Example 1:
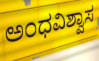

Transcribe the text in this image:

ಅಂಧವಿಶ್ವಾಸ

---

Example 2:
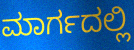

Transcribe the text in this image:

ಮಾರ್ಗದಲ್ಲಿ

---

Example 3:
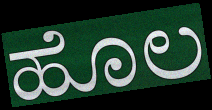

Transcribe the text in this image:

ಹೊಲ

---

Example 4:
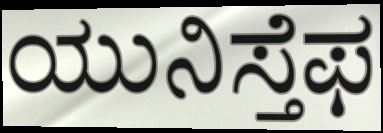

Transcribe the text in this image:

ಯುನಿಸ್ತೆಫ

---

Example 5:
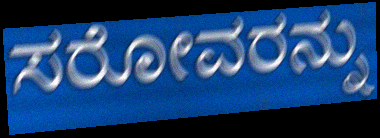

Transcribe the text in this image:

ಸರೋವರನ್ನು